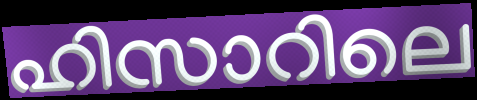
ഹിസാറിലെ